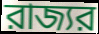
রাজ্যর